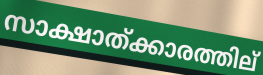
സാക്ഷാത്ക്കാരത്തില്